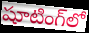
షూటింగ్‌లో